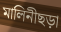
মালিনীছড়া